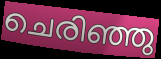
ചെരിഞ്ഞു